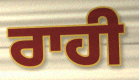
ਰਾਹੀ